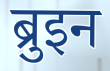
ब्रुइन